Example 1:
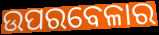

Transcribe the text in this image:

ଉପରବେଳାର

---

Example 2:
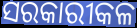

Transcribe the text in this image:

ସରକାରୀକଳ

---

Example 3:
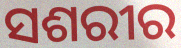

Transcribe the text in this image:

ସଶରୀର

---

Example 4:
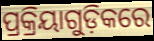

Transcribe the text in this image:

ପ୍ରକ୍ରିୟାଗୁଡ଼ିକରେ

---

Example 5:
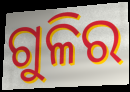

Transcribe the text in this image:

ଗୁଳିର